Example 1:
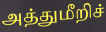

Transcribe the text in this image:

அத்துமீறிச்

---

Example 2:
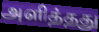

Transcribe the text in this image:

அளித்தது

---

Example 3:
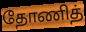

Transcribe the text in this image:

தோணித்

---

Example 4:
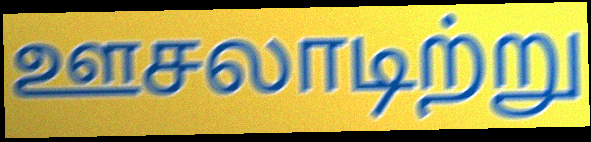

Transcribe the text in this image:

ஊசலாடிற்று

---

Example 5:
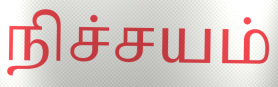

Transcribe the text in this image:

நிச்சயம்